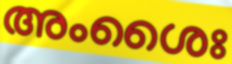
അംശൈഃ